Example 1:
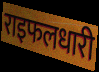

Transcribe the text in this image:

राइफलधारी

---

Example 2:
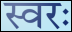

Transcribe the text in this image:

स्वरः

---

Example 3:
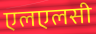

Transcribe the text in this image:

एलएलसी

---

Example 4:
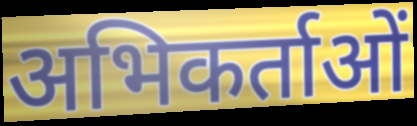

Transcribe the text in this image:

अभिकर्ताओं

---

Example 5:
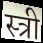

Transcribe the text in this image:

स्त्री